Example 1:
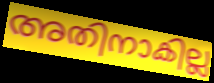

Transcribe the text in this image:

അതിനാകില്ല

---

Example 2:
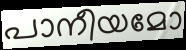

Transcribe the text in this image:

പാനീയമോ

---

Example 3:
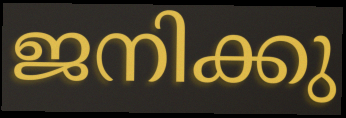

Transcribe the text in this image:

ജനിക്കു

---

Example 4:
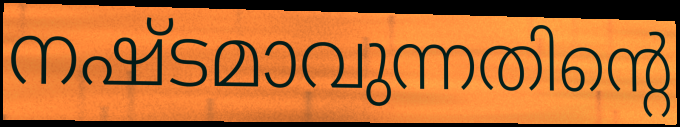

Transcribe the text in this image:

നഷ്ടമാവുന്നതിന്റെ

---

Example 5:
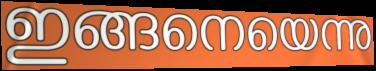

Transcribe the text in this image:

ഇങ്ങനെയെന്നു